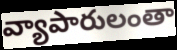
వ్యాపారులంతా